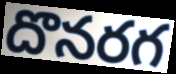
దొనరగ